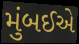
મુંબઈએ